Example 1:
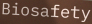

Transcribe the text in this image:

Biosafety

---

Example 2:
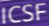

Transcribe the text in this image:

ICSF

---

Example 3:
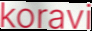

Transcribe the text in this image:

koravi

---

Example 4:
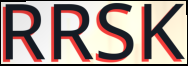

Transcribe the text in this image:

RRSK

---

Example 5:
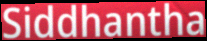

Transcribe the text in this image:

Siddhantha